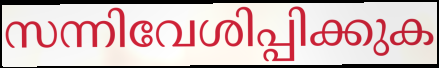
സന്നിവേശിപ്പിക്കുക